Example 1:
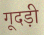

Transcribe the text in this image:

गूदड़ी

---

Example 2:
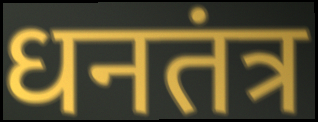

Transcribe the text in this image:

धनतंत्र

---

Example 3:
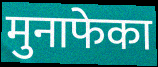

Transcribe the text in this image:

मुनाफेका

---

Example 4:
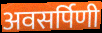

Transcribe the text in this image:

अवसर्पिणी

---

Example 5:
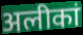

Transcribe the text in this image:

अलीकां